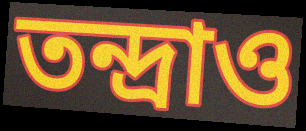
তন্দ্রাও